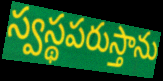
స్వస్థపరుస్తాను